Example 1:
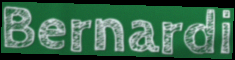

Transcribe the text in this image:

Bernardi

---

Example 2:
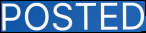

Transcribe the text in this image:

POSTED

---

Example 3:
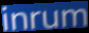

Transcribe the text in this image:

inrum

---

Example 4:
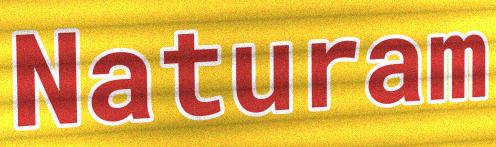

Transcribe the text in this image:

Naturam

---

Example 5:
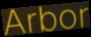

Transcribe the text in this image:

Arbor